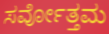
ಸರ್ವೋತ್ತಮ